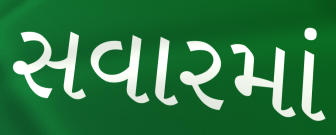
સવારમાં